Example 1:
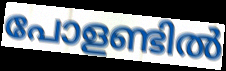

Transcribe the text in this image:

പോളണ്ടിൽ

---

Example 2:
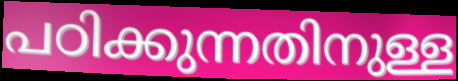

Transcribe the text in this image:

പഠിക്കുന്നതിനുള്ള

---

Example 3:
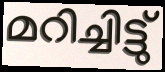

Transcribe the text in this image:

മറിച്ചിട്ടു്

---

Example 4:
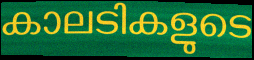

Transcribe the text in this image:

കാലടികളുടെ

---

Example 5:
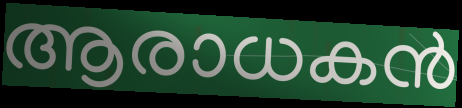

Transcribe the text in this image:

ആരാധകൻ